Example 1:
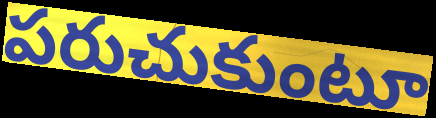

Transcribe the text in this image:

పరుచుకుంటూ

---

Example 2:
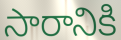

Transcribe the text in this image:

సారానికి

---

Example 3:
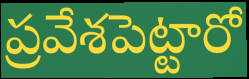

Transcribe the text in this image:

ప్రవేశపెట్టారో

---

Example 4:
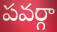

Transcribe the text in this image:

పవర్గా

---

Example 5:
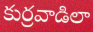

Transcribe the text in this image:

కుర్రవాడిలా